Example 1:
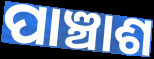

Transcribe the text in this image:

ପାଞ୍ଚାଶ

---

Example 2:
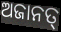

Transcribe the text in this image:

ଅଜାନତ୍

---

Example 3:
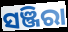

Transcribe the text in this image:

ସଞ୍ଜିରା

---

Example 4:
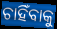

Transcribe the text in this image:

ଚାହିଁବାକୁ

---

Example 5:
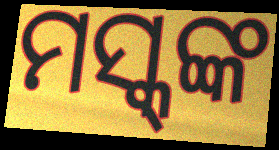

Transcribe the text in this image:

ମସ୍କ୍‌ଙ୍କ